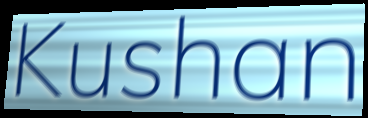
Kushan